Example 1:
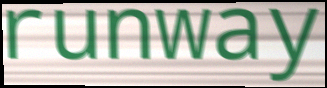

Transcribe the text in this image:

runway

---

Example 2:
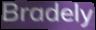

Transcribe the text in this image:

Bradely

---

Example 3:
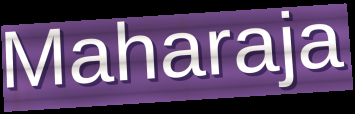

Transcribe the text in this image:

Maharaja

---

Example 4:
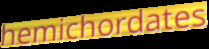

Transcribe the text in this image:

hemichordates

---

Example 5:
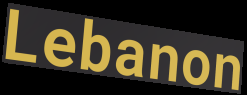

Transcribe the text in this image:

Lebanon